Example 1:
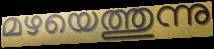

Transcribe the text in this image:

മഴയെത്തുന്നു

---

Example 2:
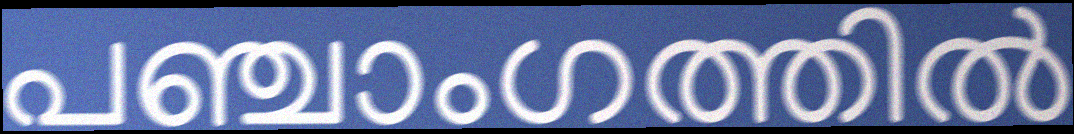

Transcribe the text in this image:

പഞ്ചാംഗത്തിൽ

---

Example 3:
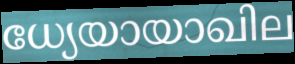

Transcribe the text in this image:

ധ്യേയായാഖില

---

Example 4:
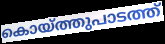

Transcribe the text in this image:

കൊയ്ത്തുപാടത്ത്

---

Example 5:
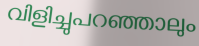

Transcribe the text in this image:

വിളിച്ചുപറഞ്ഞാലും